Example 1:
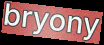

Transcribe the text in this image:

bryony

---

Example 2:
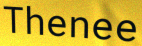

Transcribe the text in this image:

Thenee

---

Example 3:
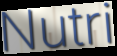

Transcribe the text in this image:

Nutri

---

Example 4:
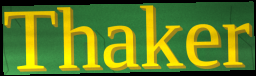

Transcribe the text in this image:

Thaker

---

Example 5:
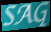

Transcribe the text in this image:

SAG